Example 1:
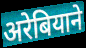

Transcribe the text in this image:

अरेबियाने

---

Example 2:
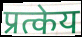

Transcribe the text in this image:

प्रत्केय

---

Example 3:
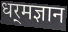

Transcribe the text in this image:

धर्मज्ञान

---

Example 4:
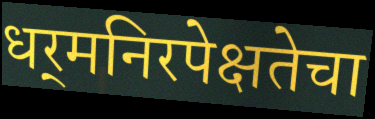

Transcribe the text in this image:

धर्मनिरपेक्षतेचा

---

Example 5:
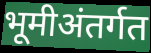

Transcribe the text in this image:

भूमीअंतर्गत